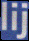
lij